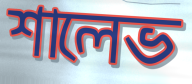
শালেভ